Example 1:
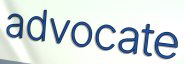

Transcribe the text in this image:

advocate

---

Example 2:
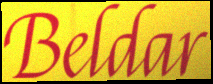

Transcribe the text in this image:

Beldar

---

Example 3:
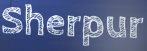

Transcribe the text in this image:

Sherpur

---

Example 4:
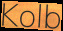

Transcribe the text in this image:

Kolb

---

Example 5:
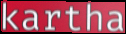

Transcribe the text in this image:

kartha